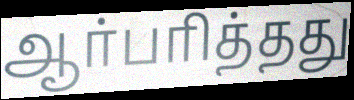
ஆர்பரித்தது